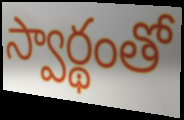
స్వార్థంతో